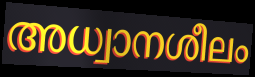
അധ്വാനശീലം